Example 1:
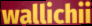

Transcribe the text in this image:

wallichii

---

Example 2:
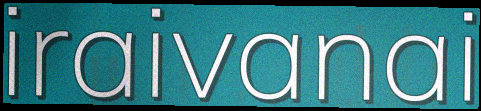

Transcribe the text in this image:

iraivanai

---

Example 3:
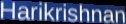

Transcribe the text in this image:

Harikrishnan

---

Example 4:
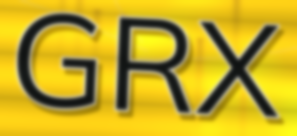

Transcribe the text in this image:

GRX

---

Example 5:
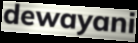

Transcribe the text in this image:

dewayani